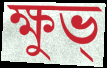
ক্ষুভ্